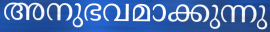
അനുഭവമാക്കുന്നു